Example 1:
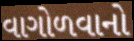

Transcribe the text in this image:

વાગોળવાનો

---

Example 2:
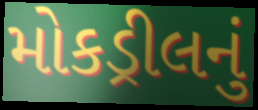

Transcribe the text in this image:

મોકડ્રીલનું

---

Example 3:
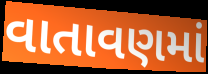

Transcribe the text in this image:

વાતાવણમાં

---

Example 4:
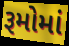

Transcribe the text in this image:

રૂમોમાં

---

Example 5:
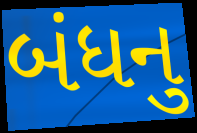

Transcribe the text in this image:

બંધનુ